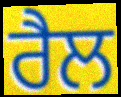
ਰੈਲ